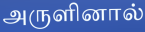
அருளினால்